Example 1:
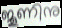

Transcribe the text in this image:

ജൂണിനു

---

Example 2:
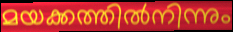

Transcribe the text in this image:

മയക്കത്തിൽനിന്നും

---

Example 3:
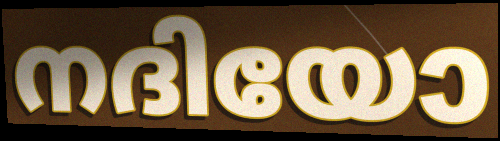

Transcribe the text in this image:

നദിയോ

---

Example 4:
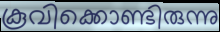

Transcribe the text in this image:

കൂവിക്കൊണ്ടിരുന്നു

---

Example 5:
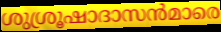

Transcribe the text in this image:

ശുശ്രൂഷാദാസൻമാരെ